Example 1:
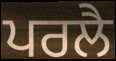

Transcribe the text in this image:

ਪਰਲੈ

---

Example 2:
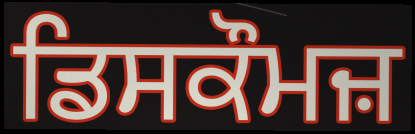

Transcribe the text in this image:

ਡਿਸਕੌਮਜ਼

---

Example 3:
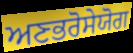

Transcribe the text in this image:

ਅਣਭਰੋਸੇਯੋਗ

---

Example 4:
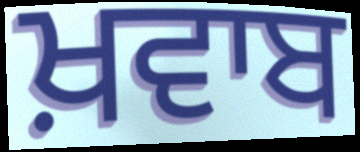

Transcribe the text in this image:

ਖ਼ਵਾਬ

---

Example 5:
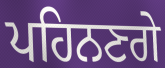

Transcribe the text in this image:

ਪਹਿਨਣਗੇ